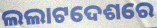
ଲଲାଟଦେଶରେ